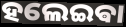
ହଲେଇଵା